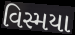
વિસ્મયા